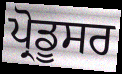
ਪ੍ਰੋਡੂਸਰ